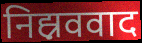
निह्नववाद